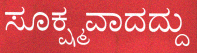
ಸೂಕ್ಷ್ಮವಾದದ್ದು